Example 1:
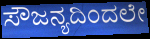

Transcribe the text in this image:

ಸೌಜನ್ಯದಿಂದಲೇ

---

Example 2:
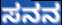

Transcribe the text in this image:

ಸನನ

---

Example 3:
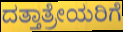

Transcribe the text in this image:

ದತ್ತಾತ್ರೇಯರಿಗೆ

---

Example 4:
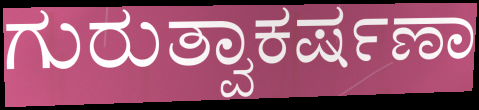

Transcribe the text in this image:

ಗುರುತ್ವಾಕರ್ಷಣಾ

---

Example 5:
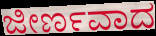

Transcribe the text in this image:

ಜೀರ್ಣವಾದ